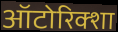
ऑटोरिक्‍शा